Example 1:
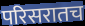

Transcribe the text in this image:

परिसरातच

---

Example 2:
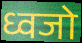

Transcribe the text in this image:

ध्वजो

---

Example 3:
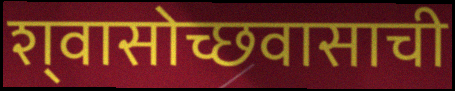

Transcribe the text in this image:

श्वासोच्छवासाची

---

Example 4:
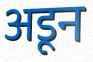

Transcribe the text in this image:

अडून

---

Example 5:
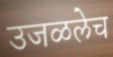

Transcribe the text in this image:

उजळलेच